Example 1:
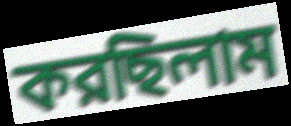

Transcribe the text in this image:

করছিলাম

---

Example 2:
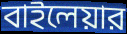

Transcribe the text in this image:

বাইলেয়ার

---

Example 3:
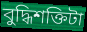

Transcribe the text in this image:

বুদ্ধিশক্তিটা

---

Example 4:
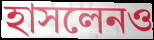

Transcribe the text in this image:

হাসলেনও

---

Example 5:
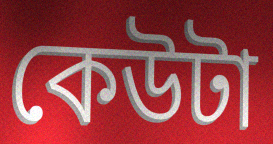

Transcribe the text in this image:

কেউটা